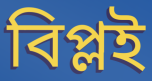
বিপ্লই